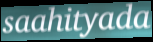
saahityada